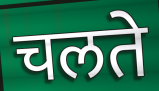
चलते